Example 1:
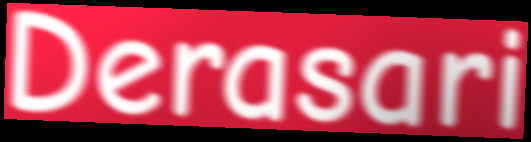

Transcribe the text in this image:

Derasari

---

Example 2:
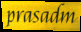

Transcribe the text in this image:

prasadm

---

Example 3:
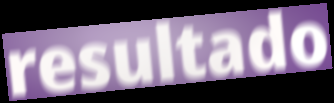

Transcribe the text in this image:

resultado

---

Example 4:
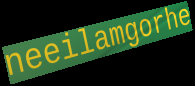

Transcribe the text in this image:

neeilamgorhe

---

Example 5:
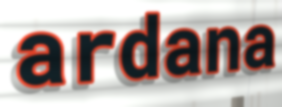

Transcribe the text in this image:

ardana